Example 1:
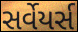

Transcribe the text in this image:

સર્વેયર્સ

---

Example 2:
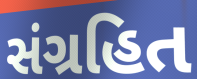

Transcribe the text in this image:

સંગ્રહિત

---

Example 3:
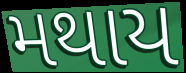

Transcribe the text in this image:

મથાય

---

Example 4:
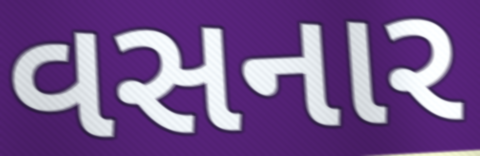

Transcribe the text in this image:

વસનાર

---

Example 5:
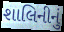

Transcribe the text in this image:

શાલિનીનું